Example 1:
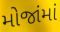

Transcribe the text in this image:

મોજાંમાં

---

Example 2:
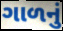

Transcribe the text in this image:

ગાળનું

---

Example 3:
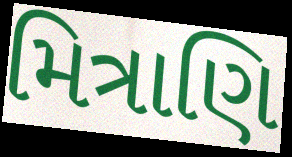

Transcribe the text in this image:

મિત્રાણિ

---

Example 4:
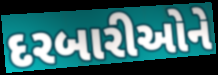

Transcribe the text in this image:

દરબારીઓને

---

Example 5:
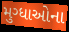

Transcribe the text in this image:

મુગ્ધાઓના